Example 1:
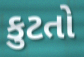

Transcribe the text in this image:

કુટતો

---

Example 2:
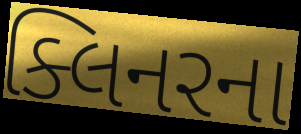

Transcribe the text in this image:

ક્લિનરના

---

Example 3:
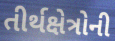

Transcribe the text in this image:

તીર્થક્ષેત્રોની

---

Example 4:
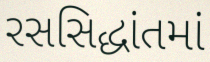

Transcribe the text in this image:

રસસિદ્ધાંતમાં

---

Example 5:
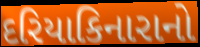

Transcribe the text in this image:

દરિયાકિનારાનો